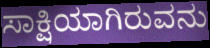
ಸಾಕ್ಷಿಯಾಗಿರುವನು